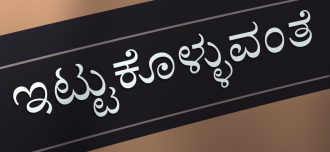
ಇಟ್ಟುಕೊಳ್ಳುವಂತೆ